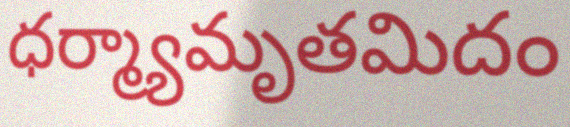
ధర్మ్యామృతమిదం